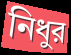
নিধুর